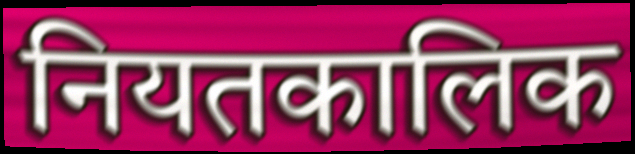
नियतकालिक